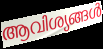
ആവിശ്യങ്ങൾ